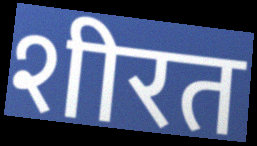
शीरत